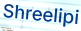
Shreelipi